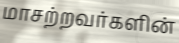
மாசற்றவர்களின்